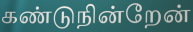
கண்டுநின்றேன்